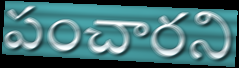
పంచారని